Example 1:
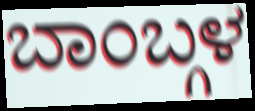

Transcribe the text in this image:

ಬಾಂಬ್ಗಳ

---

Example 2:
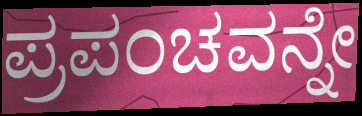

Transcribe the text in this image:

ಪ್ರಪಂಚವನ್ನೇ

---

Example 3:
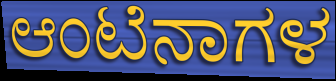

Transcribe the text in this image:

ಆಂಟೆನಾಗಳ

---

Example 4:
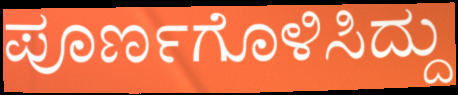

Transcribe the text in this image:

ಪೂರ್ಣಗೊಳಿಸಿದ್ದು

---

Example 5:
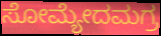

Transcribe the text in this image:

ಸೋಮ್ಯೇದಮಗ್ರ